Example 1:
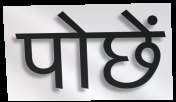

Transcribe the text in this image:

पोछें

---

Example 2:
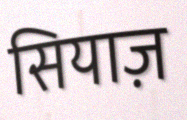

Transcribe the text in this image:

सियाज़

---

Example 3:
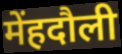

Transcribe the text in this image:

मेंहदौली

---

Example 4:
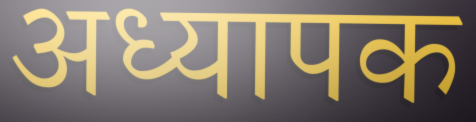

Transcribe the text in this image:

अध्यापक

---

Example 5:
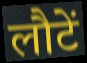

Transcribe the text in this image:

लौटें